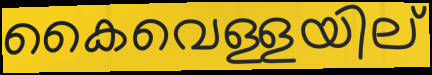
കൈവെള്ളയില്